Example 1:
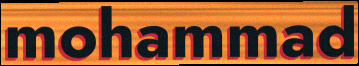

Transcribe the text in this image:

mohammad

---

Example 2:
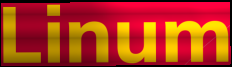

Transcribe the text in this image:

Linum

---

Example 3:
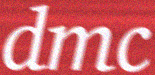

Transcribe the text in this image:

dmc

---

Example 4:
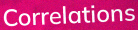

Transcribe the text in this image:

Correlations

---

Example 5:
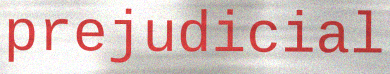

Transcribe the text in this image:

prejudicial